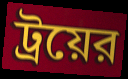
ট্রয়ের